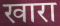
खारा